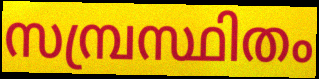
സമ്പ്രസ്ഥിതം